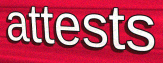
attests